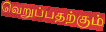
வெறுப்பதற்கும்